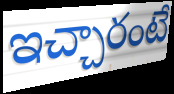
ఇచ్చారంటే